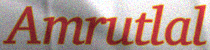
Amrutlal